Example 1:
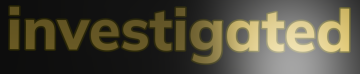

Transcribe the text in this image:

investigated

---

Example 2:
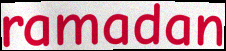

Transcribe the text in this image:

ramadan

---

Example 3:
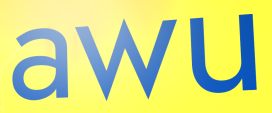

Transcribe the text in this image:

awu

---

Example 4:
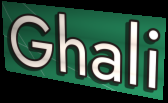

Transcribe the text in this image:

Ghali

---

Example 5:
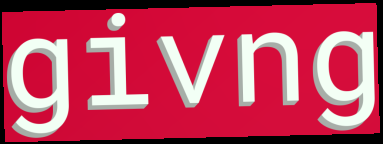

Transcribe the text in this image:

givng